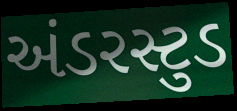
અંડરસ્ટુડ